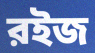
রইজ